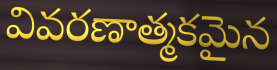
వివరణాత్మకమైన